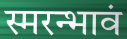
स्मरन्भावं